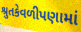
શ્રુતકેવળીપણામાં